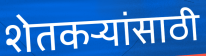
शेतकऱ्यांसाठी